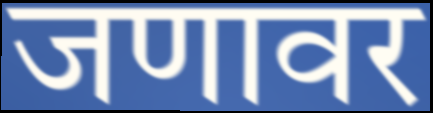
जणावर